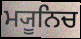
ਮ੍ਯੂਨਿਚ